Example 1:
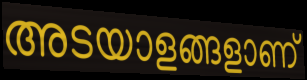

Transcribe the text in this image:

അടയാളങ്ങളാണ്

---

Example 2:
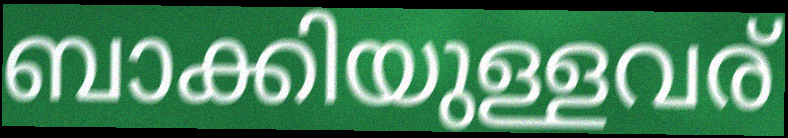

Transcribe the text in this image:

ബാക്കിയുള്ളവര്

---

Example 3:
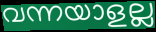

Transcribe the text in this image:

വന്നയാളല്ല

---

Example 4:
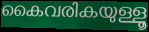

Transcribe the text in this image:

കൈവരികയുള്ളൂ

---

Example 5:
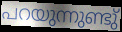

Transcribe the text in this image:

പറയുന്നുണ്ടു്